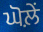
ਘੋਲ਼ੇਂ